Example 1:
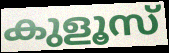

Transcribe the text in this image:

കുളൂസ്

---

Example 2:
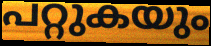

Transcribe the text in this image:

പറ്റുകയും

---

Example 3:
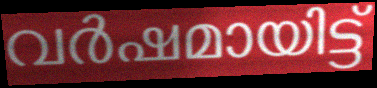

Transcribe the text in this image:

വർഷമായിട്ട്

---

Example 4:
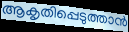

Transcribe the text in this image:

ആകൃതിപ്പെടുത്താൻ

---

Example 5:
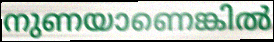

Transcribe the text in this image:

നുണയാണെങ്കിൽ